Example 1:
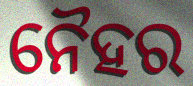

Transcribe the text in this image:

ନୈହର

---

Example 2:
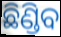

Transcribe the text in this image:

ଛିଣ୍ଡିବ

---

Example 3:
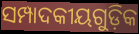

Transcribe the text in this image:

ସମ୍ପାଦକୀୟଗୁଡ଼ିକ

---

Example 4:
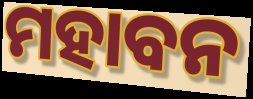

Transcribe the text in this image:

ମହାବନ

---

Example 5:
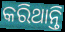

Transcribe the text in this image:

କରିଥାନ୍ତି